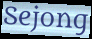
Sejong